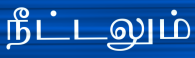
நீட்டலும்